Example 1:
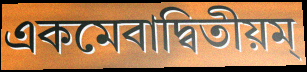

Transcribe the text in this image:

একমেবাদ্বিতীয়ম্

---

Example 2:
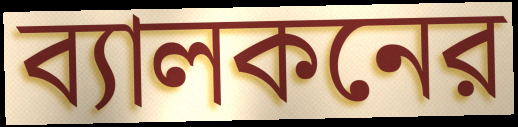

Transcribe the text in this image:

ব্যালকনের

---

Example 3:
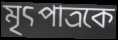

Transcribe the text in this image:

মৃৎপাত্রকে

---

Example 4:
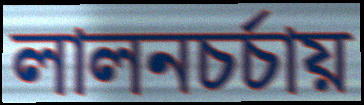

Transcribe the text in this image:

লালনচর্চায়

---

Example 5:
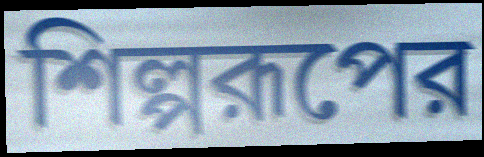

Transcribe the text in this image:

শিল্পরূপের